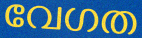
വേഗത